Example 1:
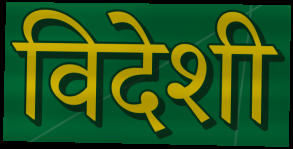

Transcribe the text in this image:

विदेशी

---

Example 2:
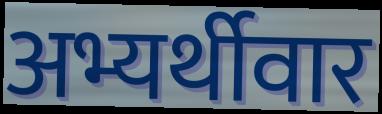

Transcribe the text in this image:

अभ्यर्थीवार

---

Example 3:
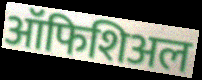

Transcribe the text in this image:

ऑफिशिअल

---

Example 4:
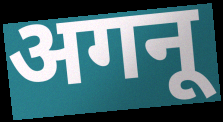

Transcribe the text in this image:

अगनू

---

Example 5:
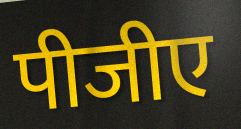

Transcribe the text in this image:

पीजीए